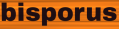
bisporus